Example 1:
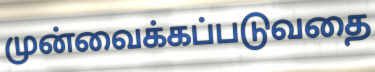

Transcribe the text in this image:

முன்வைக்கப்படுவதை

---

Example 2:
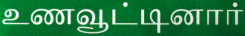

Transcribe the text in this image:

உணவூட்டினார்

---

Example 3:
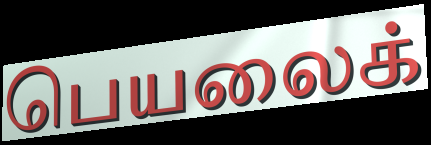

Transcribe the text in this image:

பெயலைக்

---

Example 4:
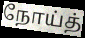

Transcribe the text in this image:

நோய்த்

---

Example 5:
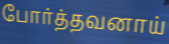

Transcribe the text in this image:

போர்த்தவனாய்